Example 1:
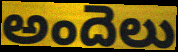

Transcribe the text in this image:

అందెలు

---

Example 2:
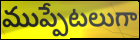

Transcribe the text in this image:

ముప్పేటలుగా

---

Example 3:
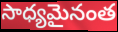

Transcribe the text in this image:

సాధ్యమైనంత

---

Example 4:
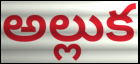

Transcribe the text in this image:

అల్లుక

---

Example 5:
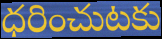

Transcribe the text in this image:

ధరించుటకు